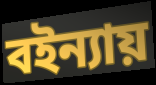
বইন্যায়